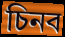
চিনব